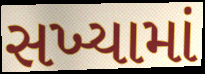
સખ્યામાં